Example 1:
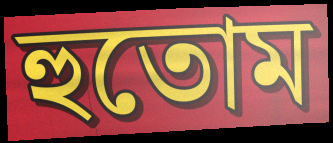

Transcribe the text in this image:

হুতোম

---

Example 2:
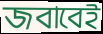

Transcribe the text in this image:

জবাবেই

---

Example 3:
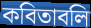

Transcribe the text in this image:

কবিতাবলি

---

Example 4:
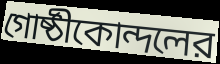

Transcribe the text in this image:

গোষ্ঠীকোন্দলের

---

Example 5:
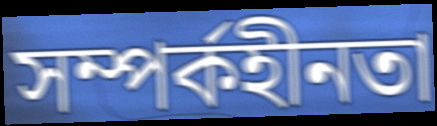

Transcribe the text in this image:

সম্পর্কহীনতা